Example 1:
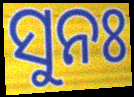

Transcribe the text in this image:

ସୁନଃ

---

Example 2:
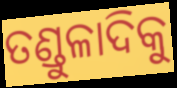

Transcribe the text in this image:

ତଣ୍ଡୁଳାଦିକୁ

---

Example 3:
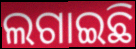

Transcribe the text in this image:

ଲଗାଇଛି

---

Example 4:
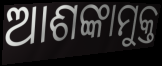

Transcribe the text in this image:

ଆଶଙ୍କାମୁକ୍ତ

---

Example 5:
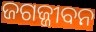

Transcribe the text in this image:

ଜଗଜ୍ଜୀବନ